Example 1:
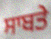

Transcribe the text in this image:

ਸਾਬਤੇ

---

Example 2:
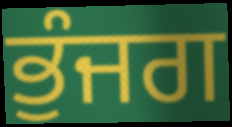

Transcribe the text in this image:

ਭੁੰਜਗ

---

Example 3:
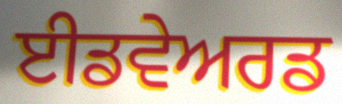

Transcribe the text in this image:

ਈਡਵੇਅਰਡ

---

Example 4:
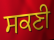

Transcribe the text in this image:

ਸਕਣੀ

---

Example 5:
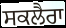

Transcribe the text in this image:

ਸਕਲੈਰਾ